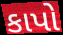
કાપો